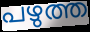
പഴുത്ത